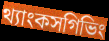
থ্যাংকসগিভিং